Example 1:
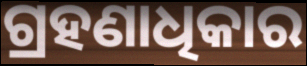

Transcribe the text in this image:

ଗ୍ରହଣାଧିକାର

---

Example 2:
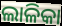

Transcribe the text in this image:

ଲାଳିକା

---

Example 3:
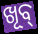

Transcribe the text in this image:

ଖୂବ୍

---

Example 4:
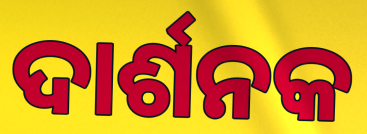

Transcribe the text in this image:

ଦାର୍ଶନକ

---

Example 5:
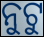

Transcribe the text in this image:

ନୁଟୁ